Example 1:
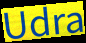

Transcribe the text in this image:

Udra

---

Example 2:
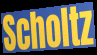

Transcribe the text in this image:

Scholtz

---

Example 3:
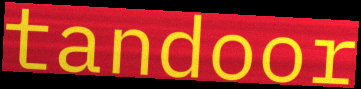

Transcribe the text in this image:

tandoor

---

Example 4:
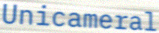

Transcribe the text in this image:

Unicameral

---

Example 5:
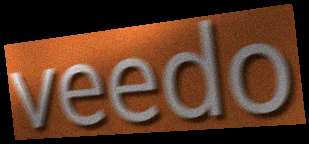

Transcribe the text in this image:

veedo